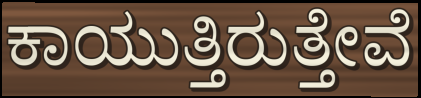
ಕಾಯುತ್ತಿರುತ್ತೇವೆ